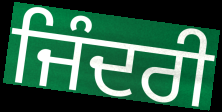
ਜਿੰਦਰੀ